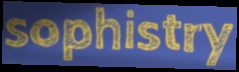
sophistry